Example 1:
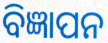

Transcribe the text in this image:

ବିଜ୍ଞାପନ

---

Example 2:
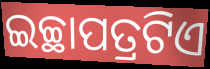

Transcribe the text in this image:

ଇଚ୍ଛାପତ୍ରଟିଏ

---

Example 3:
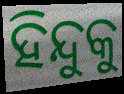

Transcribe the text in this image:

ହିନ୍ଦୁକୁ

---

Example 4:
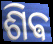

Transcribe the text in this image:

ଶିଵ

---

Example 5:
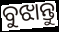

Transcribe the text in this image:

ବୁଝାନ୍ତୁ